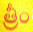
త్రీం